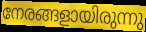
നേരങ്ങളായിരുന്നു